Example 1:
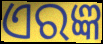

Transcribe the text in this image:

ଏରଜ୍ଞ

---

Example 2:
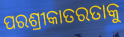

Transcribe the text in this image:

ପରଶ୍ରୀକାତରତାକୁ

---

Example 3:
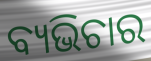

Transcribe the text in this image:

ବ୍ୟଭିଚାର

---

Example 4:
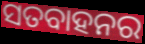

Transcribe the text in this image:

ସତବାହନର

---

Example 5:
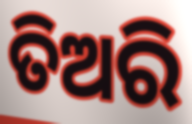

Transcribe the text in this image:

ତିଅରି